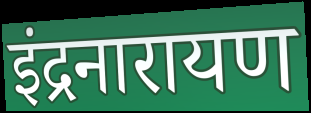
इंद्रनारायण